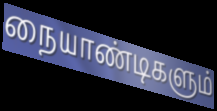
நையாண்டிகளும்